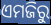
ଏମଜିରୁ